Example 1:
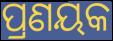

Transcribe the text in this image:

ପ୍ରଣୟକ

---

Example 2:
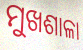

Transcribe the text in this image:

ମୁଖଶାଳା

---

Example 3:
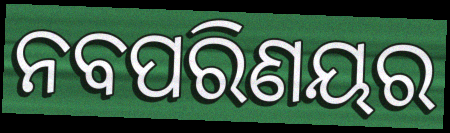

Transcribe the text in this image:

ନବପରିଣୟର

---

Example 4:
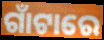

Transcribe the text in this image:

ଗାଁଟାରେ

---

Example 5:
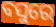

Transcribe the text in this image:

ବସୁରେ